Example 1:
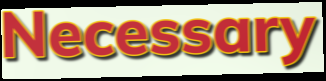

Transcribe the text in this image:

Necessary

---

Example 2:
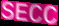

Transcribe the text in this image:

SECC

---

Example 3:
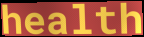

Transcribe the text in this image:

health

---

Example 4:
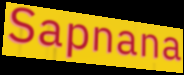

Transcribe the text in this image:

Sapnana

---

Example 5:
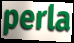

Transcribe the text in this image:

perla